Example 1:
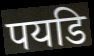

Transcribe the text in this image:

पयडि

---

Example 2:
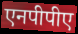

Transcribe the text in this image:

एनपीपीए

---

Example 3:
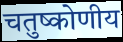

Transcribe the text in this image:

चतुष्कोणीय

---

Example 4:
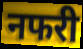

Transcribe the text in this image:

नफरी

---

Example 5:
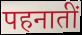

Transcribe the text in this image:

पहनातीं